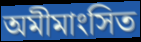
অমীমাংসিত